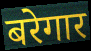
बरेगार